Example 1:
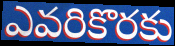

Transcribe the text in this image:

ఎవరికొరకు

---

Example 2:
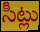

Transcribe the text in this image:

సీట్లు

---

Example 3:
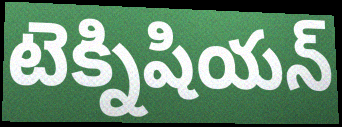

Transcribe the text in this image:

టెక్నిషియన్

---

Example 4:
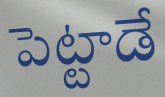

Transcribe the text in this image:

పెట్టాడే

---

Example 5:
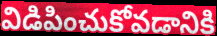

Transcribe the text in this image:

విడిపించుకోవడానికి